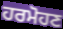
ਹਰਮੋਹਣ